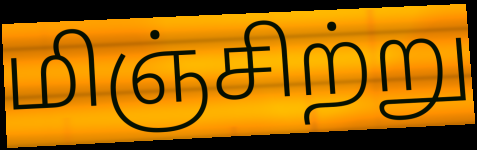
மிஞ்சிற்று